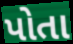
પોતા